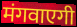
मंगवाएगी